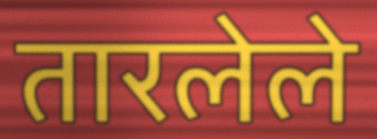
तारलेले